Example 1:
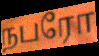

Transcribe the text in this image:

நபரோ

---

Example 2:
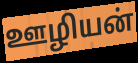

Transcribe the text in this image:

ஊழியன்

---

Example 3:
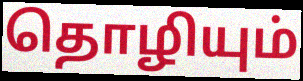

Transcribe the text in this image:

தொழியும்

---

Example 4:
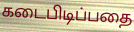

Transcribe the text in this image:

கடைபிடிப்பதை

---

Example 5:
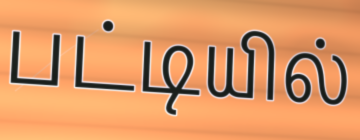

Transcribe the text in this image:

பட்டியில்